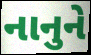
નાનુને